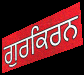
ਗੁਰਕਿਰਨ